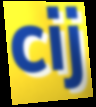
cij